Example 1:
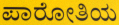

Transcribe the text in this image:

ಪಾರೋತಿಯ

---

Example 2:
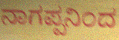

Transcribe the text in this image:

ನಾಗಪ್ಪನಿಂದ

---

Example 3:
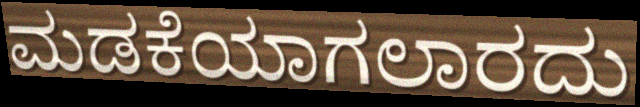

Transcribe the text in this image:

ಮಡಕೆಯಾಗಲಾರದು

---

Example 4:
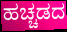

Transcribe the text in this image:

ಹಚ್ಚಡದ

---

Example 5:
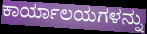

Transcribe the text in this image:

ಕಾರ್ಯಾಲಯಗಳನ್ನು